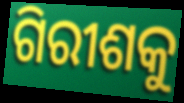
ଗିରୀଶକୁ